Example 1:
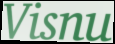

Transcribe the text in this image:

Visnu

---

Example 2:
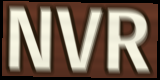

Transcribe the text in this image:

NVR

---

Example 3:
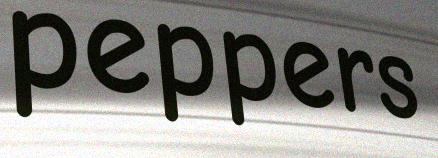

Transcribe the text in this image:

peppers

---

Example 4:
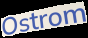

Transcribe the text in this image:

Ostrom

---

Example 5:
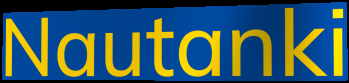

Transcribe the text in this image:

Nautanki